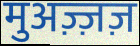
मुअज़्ज़ज़